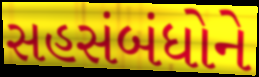
સહસંબંધોને